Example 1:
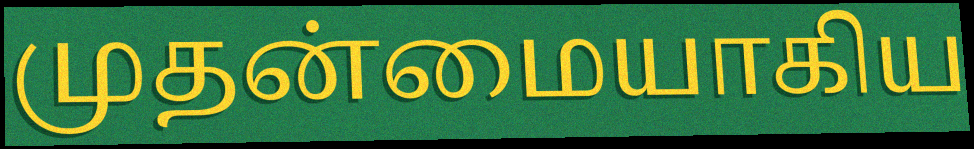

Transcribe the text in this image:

முதன்மையாகிய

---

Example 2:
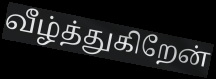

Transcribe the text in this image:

வீழ்த்துகிறேன்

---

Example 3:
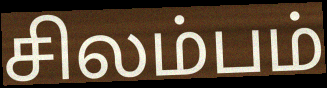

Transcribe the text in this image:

சிலம்பம்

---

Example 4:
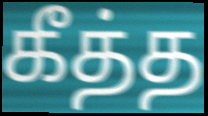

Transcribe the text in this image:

கீத்த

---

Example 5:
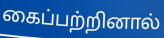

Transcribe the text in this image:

கைப்பற்றினால்